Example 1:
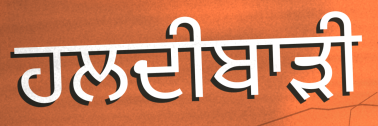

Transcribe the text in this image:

ਹਲਦੀਬਾੜੀ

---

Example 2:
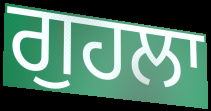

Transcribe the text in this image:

ਗੁਹਲਾ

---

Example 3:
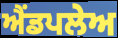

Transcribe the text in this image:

ਐਂਡਪਲੇਅ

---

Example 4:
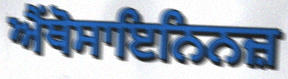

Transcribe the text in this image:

ਐਂਥੋਸਾਇਨਿਨਜ਼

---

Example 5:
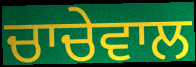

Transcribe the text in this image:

ਚਾਚੇਵਾਲ